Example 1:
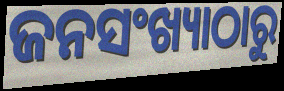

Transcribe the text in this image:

ଜନସଂଖ୍ୟାଠାରୁ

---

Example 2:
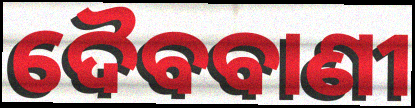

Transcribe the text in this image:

ଦୈବବାଣୀ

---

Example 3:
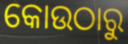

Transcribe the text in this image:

କୋଉଠାରୁ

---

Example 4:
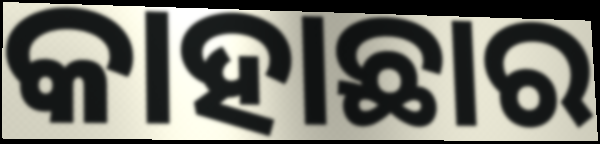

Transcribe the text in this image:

କାହାଛାର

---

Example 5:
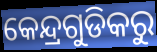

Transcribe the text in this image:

କେନ୍ଦ୍ରଗୁଡିକରୁ